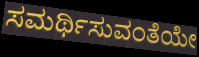
ಸಮರ್ಥಿಸುವಂತೆಯೇ